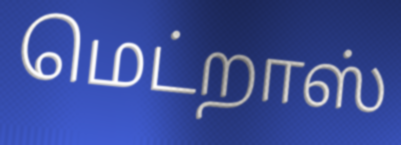
மெட்றாஸ்